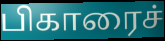
பிகாரைச்